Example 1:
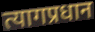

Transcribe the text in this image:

त्यागप्रधान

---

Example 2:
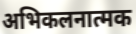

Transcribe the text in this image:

अभिकलनात्मक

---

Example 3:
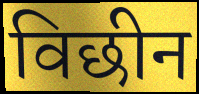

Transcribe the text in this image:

विछीन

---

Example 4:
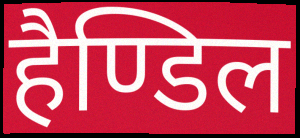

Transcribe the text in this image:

हैण्डिल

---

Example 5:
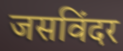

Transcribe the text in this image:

जसविंदर